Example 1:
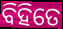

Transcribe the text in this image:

ବିହିତେ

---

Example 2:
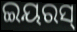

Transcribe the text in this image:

ଇୟରସ୍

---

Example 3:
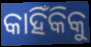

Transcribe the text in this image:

କାହିଁକିକୁ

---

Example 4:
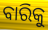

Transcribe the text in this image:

ବାରିକୁ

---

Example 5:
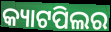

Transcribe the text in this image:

କ୍ୟାଟପିଲର